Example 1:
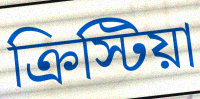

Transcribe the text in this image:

ক্রিস্টিয়া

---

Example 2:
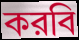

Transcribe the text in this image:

করবি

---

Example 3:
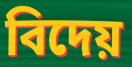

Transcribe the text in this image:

বিদেয়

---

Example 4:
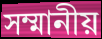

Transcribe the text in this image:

সম্মানীয়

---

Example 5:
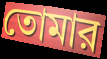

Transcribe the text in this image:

তোমার